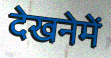
देखनेमें